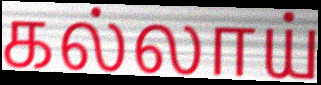
கல்லாய்